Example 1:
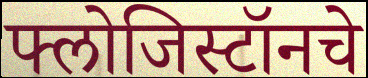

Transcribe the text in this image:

फ्लोजिस्टॉनचे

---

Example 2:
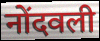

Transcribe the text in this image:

नोंदवली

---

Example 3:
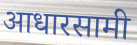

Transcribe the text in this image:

आधारसामी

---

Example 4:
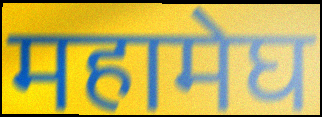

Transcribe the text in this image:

महामेघ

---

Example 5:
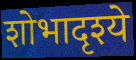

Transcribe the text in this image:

शोभादृश्ये